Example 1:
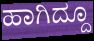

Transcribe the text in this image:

ಹಾಗಿದ್ದೂ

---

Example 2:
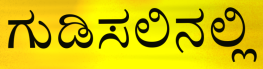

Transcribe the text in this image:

ಗುಡಿಸಲಿನಲ್ಲಿ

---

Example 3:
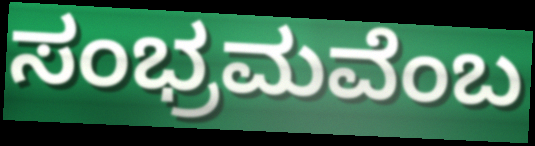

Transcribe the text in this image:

ಸಂಭ್ರಮವೆಂಬ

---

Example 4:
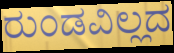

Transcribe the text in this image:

ರುಂಡವಿಲ್ಲದ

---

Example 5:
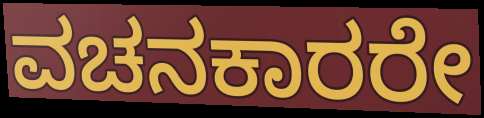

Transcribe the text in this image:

ವಚನಕಾರರೇ